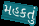
મહકતું